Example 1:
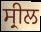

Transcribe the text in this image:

ਸ੍ਰੀਲ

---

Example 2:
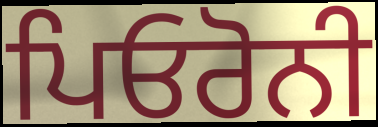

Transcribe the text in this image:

ਪਿਓਰੋਨੀ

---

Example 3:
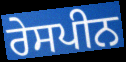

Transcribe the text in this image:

ਰੇਸਪੀਨ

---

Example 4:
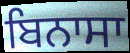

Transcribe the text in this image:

ਬਿਨਾਸਾ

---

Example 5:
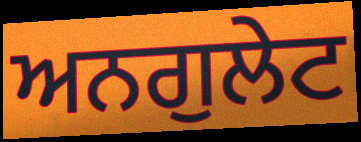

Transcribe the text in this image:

ਅਨਗੁਲੇਟ